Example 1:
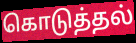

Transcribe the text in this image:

கொடுத்தல்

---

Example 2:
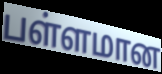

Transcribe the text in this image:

பள்ளமான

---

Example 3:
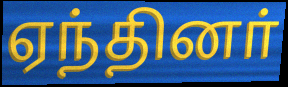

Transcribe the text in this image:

ஏந்தினர்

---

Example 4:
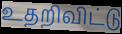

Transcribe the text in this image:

உதறிவிட்டு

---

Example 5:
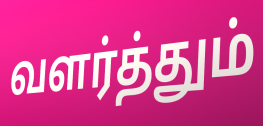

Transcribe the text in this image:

வளர்த்தும்